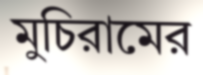
মুচিরামের